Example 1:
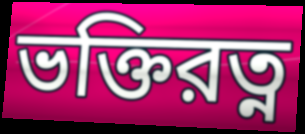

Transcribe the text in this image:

ভক্তিরত্ন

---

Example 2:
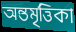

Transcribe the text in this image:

অন্তর্মৃত্তিকা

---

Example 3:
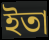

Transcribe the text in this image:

ইতা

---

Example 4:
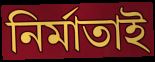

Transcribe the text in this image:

নির্মাতাই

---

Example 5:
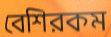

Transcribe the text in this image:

বেশিরকম